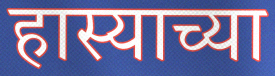
हास्याच्या